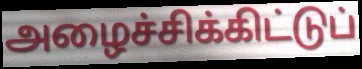
அழைச்சிக்கிட்டுப்